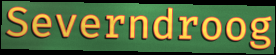
Severndroog